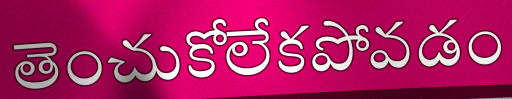
తెంచుకోలేకపోవడం